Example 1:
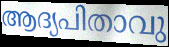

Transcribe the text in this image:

ആദ്യപിതാവു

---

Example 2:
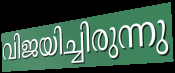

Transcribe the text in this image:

വിജയിച്ചിരുന്നു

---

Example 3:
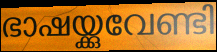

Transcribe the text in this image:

ഭാഷയ്ക്കുവേണ്ടി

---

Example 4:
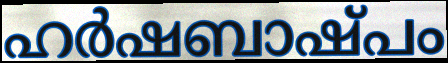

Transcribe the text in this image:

ഹർഷബാഷ്പം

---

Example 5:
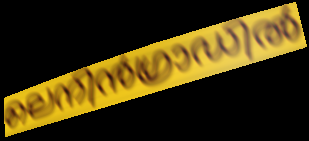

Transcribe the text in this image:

ലെനിൻഗ്രാഡിൽ